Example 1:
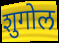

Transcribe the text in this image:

शुगोल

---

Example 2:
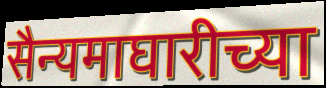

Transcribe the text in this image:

सैन्यमाघारीच्या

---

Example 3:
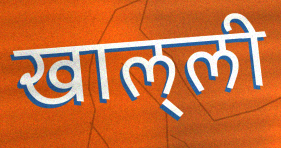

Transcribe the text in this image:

खाल्ली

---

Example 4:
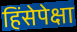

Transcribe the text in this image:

हिंसेपेक्षा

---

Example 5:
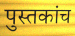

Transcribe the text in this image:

पुस्तकांच